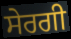
ਸੇਰਗੀ